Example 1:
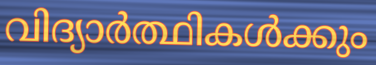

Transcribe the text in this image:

വിദ്യാർത്ഥികൾക്കും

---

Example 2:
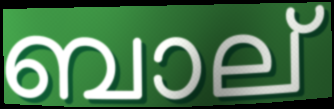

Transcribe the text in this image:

ബാല്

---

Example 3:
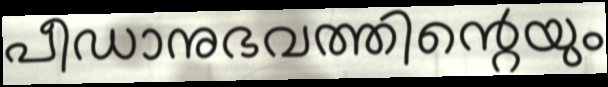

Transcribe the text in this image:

പീഡാനുഭവത്തിന്റെയും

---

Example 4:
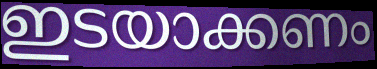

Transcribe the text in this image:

ഇടയാക്കണം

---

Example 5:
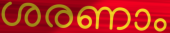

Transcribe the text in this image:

ശരണാം